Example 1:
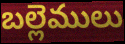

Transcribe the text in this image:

బల్లెములు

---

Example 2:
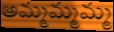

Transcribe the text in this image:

అమ్మమ్మమ్మ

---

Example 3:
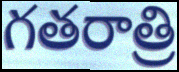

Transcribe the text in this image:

గతరాత్రి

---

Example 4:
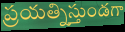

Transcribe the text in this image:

ప్రయత్నిస్తుండగా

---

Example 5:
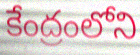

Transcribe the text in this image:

కేంద్రంలోని